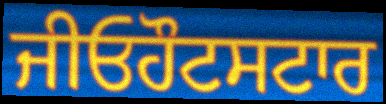
ਜੀਓਹੌਟਸਟਾਰ